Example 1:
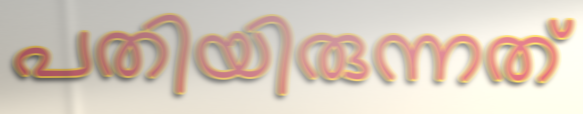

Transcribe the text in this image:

പതിയിരുന്നത്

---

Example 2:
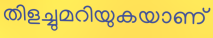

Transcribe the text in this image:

തിളച്ചുമറിയുകയാണ്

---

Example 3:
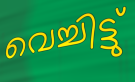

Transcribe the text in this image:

വെച്ചിട്ടു്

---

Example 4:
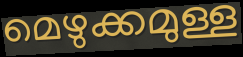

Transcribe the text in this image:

മെഴുക്കമുള്ള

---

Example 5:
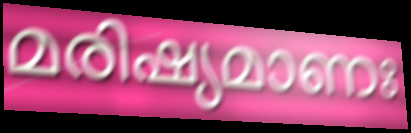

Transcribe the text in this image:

മരിഷ്യമാണഃ